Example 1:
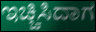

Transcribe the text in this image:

ಇಚ್ಚಿಸಿದಾಗ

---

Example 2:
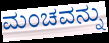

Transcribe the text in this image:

ಮಂಚವನ್ನು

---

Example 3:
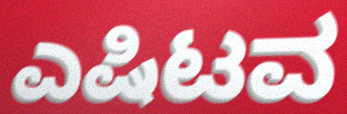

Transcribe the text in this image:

ಎಷಿಟವ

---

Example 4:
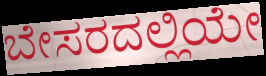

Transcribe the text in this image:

ಬೇಸರದಲ್ಲಿಯೇ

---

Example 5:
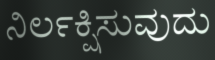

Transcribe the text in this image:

ನಿರ್ಲಕ್ಷಿಸುವುದು